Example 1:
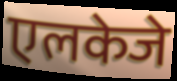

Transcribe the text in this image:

एलकेजे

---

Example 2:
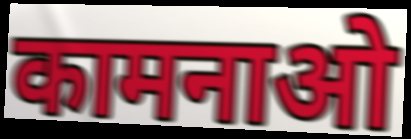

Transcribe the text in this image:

कामनाओ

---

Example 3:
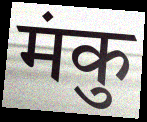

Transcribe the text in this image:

मंकु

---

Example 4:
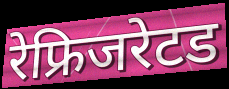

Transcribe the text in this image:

रेफ्रिजरेटड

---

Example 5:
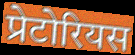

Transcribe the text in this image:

प्रेटोरियस